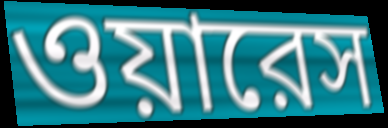
ওয়ারেস